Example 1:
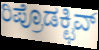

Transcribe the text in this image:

ರಿಪ್ರೊಡಕ್ಟಿವ್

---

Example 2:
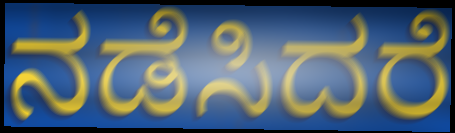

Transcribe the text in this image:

ನಡೆಸಿದರೆ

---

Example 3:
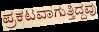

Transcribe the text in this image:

ಪ್ರಕಟವಾಗುತ್ತಿದ್ದವು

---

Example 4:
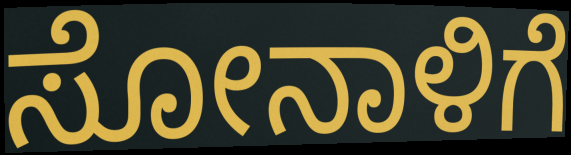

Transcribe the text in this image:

ಸೋನಾಳಿಗೆ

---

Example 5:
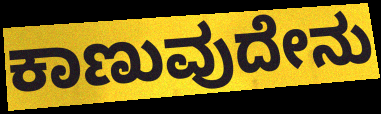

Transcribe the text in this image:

ಕಾಣುವುದೇನು